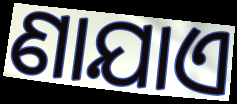
ଣାଯାଏ